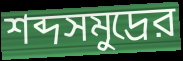
শব্দসমুদ্রের